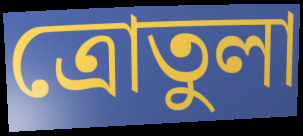
ত্রোতুলা